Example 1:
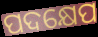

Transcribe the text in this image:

ପଦକ୍ଷେପ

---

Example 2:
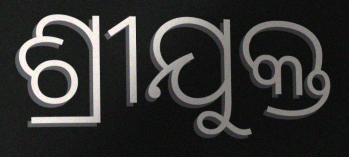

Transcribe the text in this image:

ଶ୍ରୀଯୁକ୍ତ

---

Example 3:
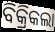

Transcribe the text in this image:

ବିକ୍ରିକଲା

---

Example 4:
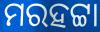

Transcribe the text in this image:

ମରହଟ୍ଟା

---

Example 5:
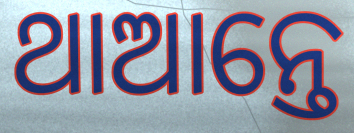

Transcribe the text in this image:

ଥାଆନ୍ତେ